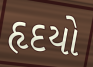
હૃદયો